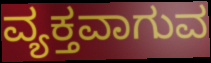
ವ್ಯಕ್ತವಾಗುವ